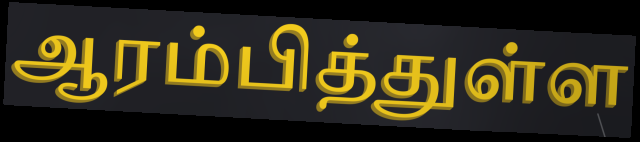
ஆரம்பித்துள்ள